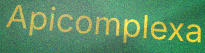
Apicomplexa